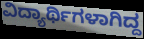
ವಿದ್ಯಾರ್ಥಿಗಳಾಗಿದ್ದ